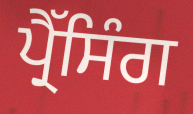
ਪ੍ਰੈੱਸਿੰਗ